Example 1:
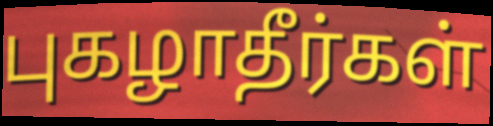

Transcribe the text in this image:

புகழாதீர்கள்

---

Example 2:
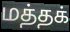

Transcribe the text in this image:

மத்தக்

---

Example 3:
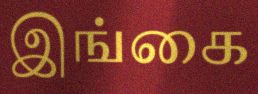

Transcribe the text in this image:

இங்கை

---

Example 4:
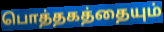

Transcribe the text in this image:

பொத்தகத்தையும்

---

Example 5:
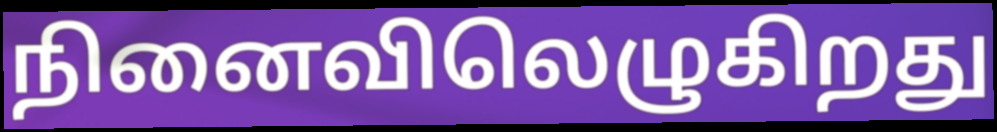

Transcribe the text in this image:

நினைவிலெழுகிறது